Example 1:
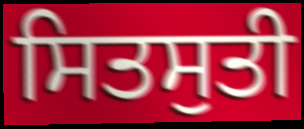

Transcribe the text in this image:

ਸਿਤਸੁਤੀ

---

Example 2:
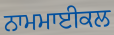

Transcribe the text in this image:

ਨਾਮਮਾਈਕਲ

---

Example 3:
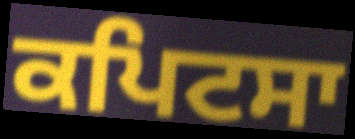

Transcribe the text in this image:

ਕਪਿਟਸਾ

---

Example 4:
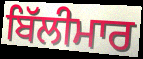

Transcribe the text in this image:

ਬਿੱਲੀਮਾਰ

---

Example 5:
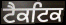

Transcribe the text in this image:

ਟੈਕਟਿਕ